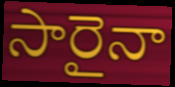
సారైనా